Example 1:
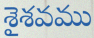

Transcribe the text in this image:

శైశవము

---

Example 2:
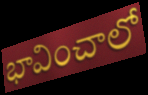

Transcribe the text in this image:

భావించాలో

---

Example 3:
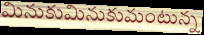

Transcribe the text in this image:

మినుకుమినుకుమంటున్న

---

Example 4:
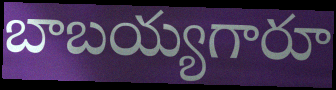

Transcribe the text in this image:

బాబయ్యగారూ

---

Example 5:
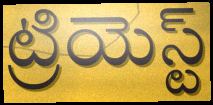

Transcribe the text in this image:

ట్రియెస్ట్